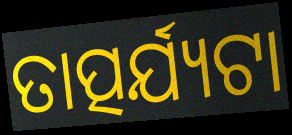
ତାତ୍ପର୍ଯ୍ୟଟା